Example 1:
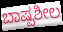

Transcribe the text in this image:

ಬಾಷ್ಪಶೀಲ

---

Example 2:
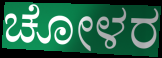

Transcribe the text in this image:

ಚೋಳರ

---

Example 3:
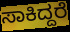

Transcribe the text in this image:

ಸಾಕಿದ್ದರೆ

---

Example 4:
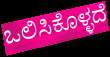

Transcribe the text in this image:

ಒಲಿಸಿಕೊಳ್ಳದೆ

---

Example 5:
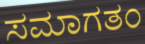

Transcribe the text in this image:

ಸಮಾಗತಂ